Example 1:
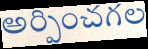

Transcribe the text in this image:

అర్పించగల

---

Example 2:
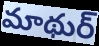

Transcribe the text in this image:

మాథుర్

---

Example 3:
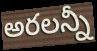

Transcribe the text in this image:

అరలన్నీ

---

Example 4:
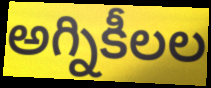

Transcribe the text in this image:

అగ్నికీలల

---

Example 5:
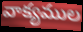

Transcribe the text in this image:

వాక్యముల